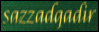
sazzadqadir